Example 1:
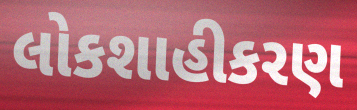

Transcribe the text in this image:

લોકશાહીકરણ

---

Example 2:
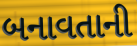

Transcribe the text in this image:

બનાવતાની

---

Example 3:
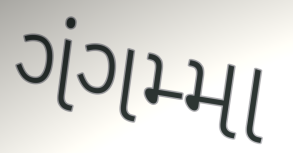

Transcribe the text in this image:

ગંગમ્મા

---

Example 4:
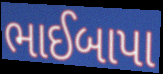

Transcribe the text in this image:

ભાઈબાપા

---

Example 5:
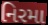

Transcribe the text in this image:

નિરમા